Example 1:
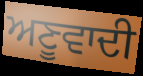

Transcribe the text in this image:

ਅਣੂਵਾਦੀ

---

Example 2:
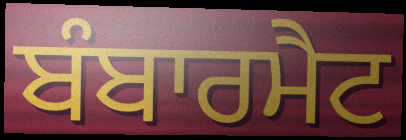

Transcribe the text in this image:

ਬੰਬਾਰਮੈਟ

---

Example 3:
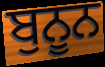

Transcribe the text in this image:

ਬੁਨੂਨ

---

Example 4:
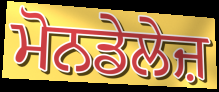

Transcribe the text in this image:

ਮੋਨਡੇਲੇਜ਼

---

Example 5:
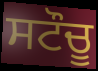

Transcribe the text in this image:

ਸਟੌਚੂ